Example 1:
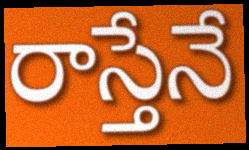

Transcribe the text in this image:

రాస్తేనే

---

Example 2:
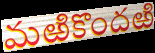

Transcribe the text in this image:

మఱికొందఱి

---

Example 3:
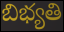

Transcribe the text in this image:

బిభ్యతి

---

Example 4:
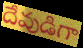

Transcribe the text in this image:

దేవుడిగా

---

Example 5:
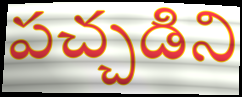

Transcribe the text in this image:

పచ్చడిని